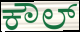
ಕೌಲ್